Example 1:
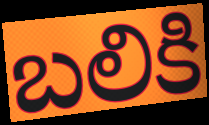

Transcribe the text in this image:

బలికి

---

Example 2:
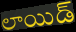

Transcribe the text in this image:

లాయిడ్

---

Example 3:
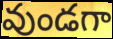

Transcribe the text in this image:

వుండగా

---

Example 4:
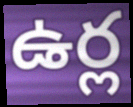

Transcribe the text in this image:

ఉర్ల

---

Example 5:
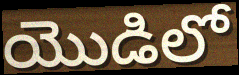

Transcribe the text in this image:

యొడిలో